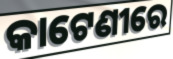
କାଟେଣୀରେ